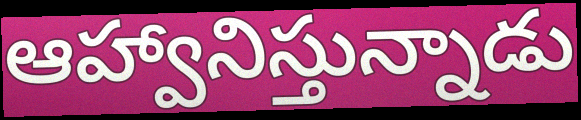
ఆహ్వానిస్తున్నాడు